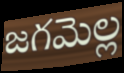
జగమెల్ల